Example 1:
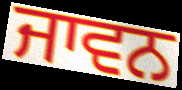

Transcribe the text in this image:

ਜਾਵਨ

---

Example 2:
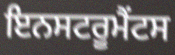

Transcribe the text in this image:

ਇਨਸਟਰੂਮੈਂਟਸ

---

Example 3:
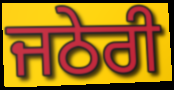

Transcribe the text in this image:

ਜਠੇਰੀ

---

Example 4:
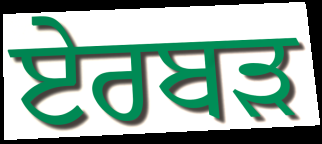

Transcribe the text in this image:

ਏਰਬੜ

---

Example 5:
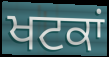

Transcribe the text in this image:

ਖਟਕਾਂ